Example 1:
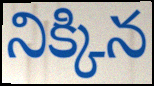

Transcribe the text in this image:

నిక్కిన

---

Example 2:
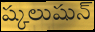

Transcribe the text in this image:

ష్కలుషున్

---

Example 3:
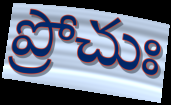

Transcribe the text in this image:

ప్రోచుః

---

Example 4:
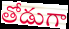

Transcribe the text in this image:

తోడుగా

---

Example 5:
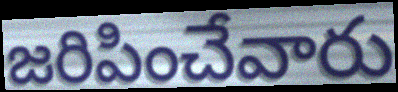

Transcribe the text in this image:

జరిపించేవారు